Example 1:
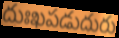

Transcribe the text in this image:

దుఃఖపడుదురు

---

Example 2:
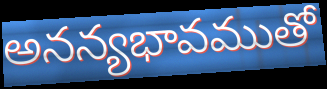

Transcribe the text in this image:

అనన్యభావముతో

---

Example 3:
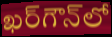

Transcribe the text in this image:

ఖర్‌గౌన్‌లో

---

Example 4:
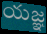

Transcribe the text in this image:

యజ్ఞ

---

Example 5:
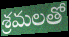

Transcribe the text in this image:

శ్రమలతో